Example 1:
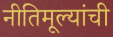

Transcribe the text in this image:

नीतिमूल्यांची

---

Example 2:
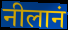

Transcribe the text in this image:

नीलानं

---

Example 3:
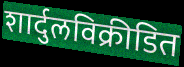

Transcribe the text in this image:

शार्दुलविक्रीडित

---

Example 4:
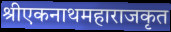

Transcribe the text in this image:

श्रीएकनाथमहाराजकृत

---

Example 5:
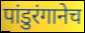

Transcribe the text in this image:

पांडुरंगानेच